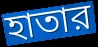
হাতার